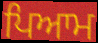
ਪਿਆਮ